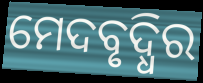
ମେଦବୃଦ୍ଧିର